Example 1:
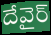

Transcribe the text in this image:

దేవైర్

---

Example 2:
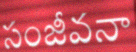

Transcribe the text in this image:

సంజీవనా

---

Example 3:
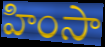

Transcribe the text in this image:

హింసా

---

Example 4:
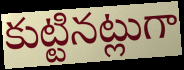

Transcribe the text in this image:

కుట్టినట్లుగా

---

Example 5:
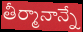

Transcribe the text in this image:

తీర్మానాన్నే